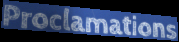
Proclamations